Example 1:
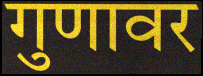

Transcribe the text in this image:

गुणावर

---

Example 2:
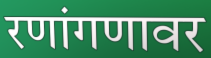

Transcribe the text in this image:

रणांगणावर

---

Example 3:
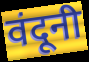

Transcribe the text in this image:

वंदूनी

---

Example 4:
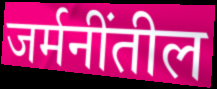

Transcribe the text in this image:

जर्मनींतील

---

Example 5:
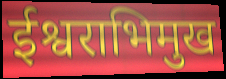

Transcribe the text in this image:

ईश्वराभिमुख